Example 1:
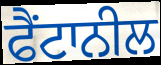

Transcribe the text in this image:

ਫੈਂਟਾਨੀਲ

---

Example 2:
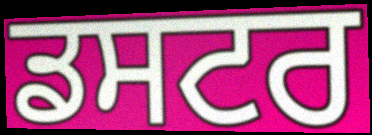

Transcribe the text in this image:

ਡਸਟਰ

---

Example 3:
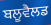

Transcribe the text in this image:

ਬਲੂਵੈਲਡ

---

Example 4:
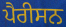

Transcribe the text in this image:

ਪੈਰੀਸਨ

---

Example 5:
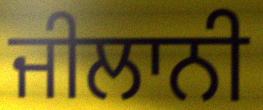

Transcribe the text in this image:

ਜੀਲਾਨੀ